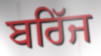
ਬਰਿੱਜ